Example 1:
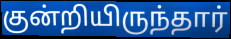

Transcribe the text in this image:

குன்றியிருந்தார்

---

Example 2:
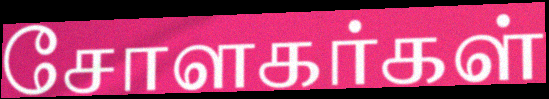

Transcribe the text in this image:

சோளகர்கள்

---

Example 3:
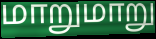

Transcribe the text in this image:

மாறுமாறு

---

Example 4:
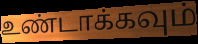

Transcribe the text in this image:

உண்டாக்கவும்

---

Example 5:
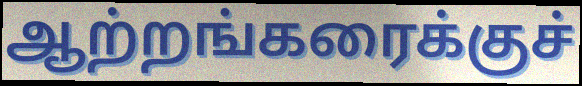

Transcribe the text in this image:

ஆற்றங்கரைக்குச்